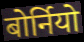
बोर्नियो